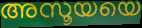
അസൂയയെ